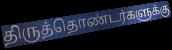
திருத்தொண்டர்களுக்கு